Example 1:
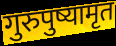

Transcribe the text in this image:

गुरुपुष्यामृत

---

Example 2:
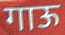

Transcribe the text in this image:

गाऊ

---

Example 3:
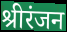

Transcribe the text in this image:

श्रीरंजन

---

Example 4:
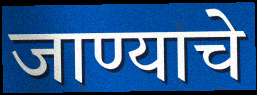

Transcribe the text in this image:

जाण्याचे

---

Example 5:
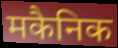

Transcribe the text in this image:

मकैनिक